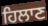
ਹਿਲਾਣ